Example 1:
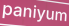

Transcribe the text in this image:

paniyum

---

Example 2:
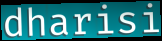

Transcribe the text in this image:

dharisi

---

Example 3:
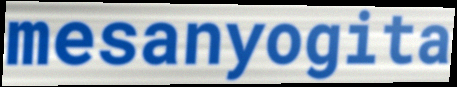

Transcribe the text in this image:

mesanyogita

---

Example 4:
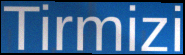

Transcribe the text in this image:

Tirmizi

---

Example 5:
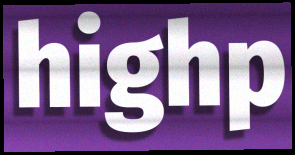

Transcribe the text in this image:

highp